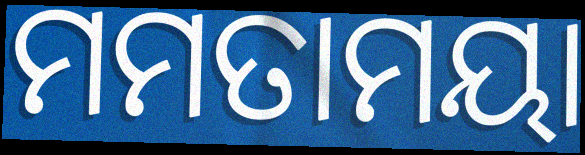
ମମତାମୟା